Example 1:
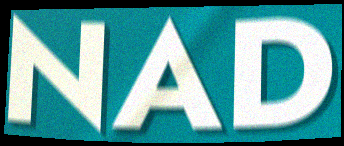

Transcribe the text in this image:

NAD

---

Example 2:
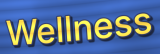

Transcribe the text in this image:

Wellness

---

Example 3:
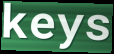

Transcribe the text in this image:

keys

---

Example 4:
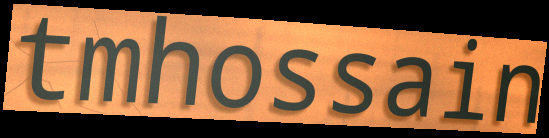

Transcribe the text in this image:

tmhossain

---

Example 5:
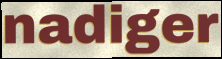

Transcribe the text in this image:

nadiger